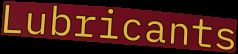
Lubricants